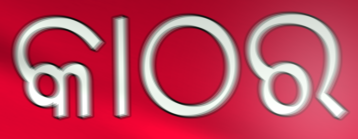
କାଠର